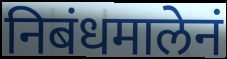
निबंधमालेनं